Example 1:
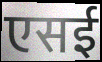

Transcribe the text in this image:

एसई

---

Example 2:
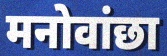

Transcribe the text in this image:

मनोवांछा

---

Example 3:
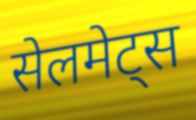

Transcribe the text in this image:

सेलमेट्स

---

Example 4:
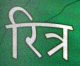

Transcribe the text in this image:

रित्र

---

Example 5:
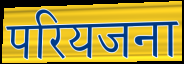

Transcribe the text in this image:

परियजना